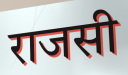
राजसी